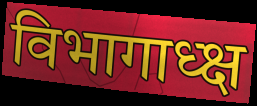
विभागाध्क्ष